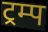
ट्रम्प